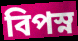
বিপস্ন